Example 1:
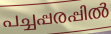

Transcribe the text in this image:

പച്ചപ്പരപ്പിൽ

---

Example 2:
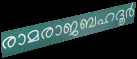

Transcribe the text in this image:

രാമരാജബഹദൂർ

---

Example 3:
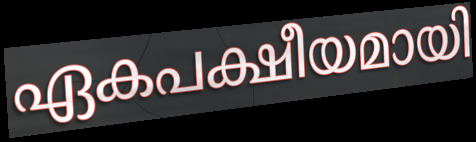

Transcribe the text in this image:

ഏകപക്ഷീയമായി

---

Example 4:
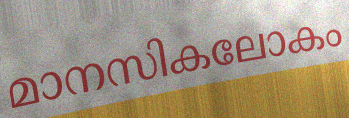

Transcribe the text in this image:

മാനസികലോകം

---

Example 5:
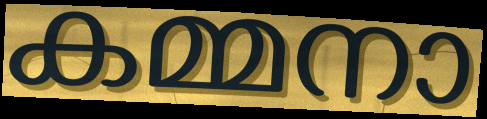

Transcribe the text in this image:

കമ്മനാ